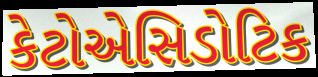
કેટોએસિડોટિક